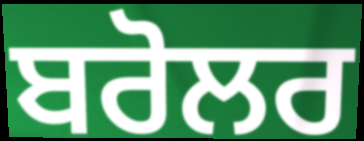
ਬਰੋਲਰ